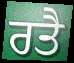
ਰਤੈ